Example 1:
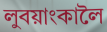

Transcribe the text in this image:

লুবয়াংকালৈ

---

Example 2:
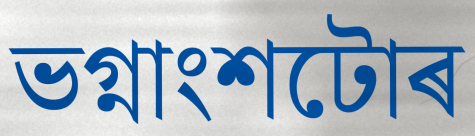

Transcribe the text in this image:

ভগ্নাংশটোৰ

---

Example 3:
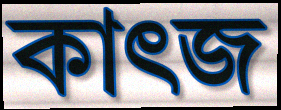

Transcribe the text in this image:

কাৎজ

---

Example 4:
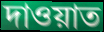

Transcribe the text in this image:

দাওয়াত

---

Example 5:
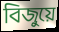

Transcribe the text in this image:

বিজুয়ে